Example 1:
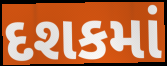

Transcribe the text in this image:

દશકમાં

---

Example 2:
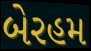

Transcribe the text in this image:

બેરહમ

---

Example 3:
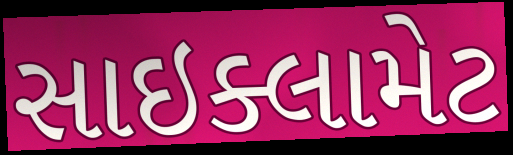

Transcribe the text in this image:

સાઇક્લામેટ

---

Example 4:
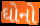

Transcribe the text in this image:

ઘોનો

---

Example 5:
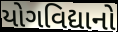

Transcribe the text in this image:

યોગવિદ્યાનો